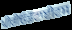
ਪੀਰੀਓਡੋਂਟਾਈਟਸ